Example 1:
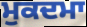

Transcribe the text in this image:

ਮੁਕਦਮਾ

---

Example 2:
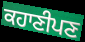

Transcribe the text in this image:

ਕਹਾਣੀਪਣ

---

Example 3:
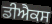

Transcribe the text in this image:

ਡੀਐਕਸ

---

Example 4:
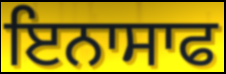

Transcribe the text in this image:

ਇਨਾਸਾਫ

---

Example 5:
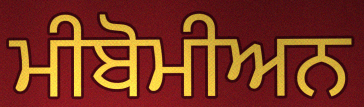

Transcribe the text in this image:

ਮੀਬੋਮੀਅਨ